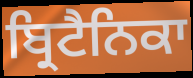
ਬ੍ਰਿਟੈਨਿਕਾ